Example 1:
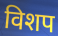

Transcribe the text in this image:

विशप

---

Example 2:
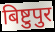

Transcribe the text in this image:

बिष्टुपुर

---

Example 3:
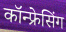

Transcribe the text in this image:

कॉन्फ्रेसिंग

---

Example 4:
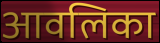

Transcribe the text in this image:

आवलिका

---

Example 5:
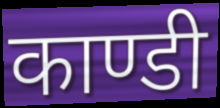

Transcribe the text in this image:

काण्डी